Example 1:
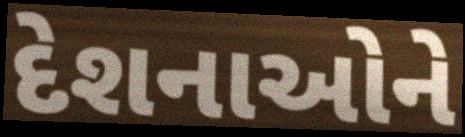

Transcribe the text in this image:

દેશનાઓને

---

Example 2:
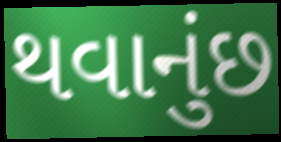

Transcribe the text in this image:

થવાનુંછ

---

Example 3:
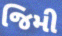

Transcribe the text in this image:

જિમી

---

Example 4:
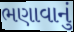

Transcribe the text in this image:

ભણાવાનું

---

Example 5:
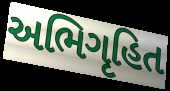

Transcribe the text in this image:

અભિગૃહિત